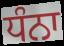
ਧੰਨਾ